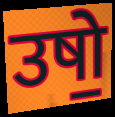
उषो॒